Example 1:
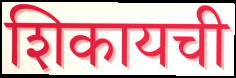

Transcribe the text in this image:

शिकायची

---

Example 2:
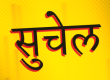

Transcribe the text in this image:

सुचेल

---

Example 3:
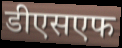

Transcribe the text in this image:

डीएसएफ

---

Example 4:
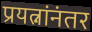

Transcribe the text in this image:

प्रयत्नांनंतर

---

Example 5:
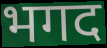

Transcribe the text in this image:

भगद